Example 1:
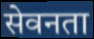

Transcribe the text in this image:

सेवनता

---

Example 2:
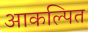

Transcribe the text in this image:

आकल्पित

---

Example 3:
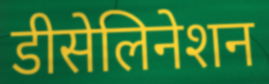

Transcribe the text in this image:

डीसेलिनेशन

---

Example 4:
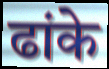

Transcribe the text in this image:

ढांके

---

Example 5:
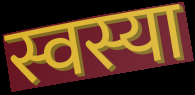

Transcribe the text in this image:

स्वस्या